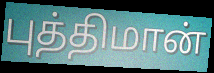
புத்திமான்